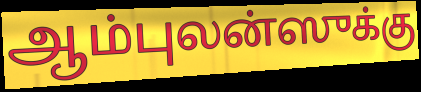
ஆம்புலன்ஸுக்கு